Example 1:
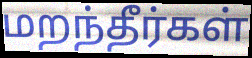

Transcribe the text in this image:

மறந்தீர்கள்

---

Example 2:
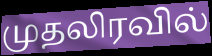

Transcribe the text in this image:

முதலிரவில்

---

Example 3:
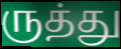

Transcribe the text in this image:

ருத்து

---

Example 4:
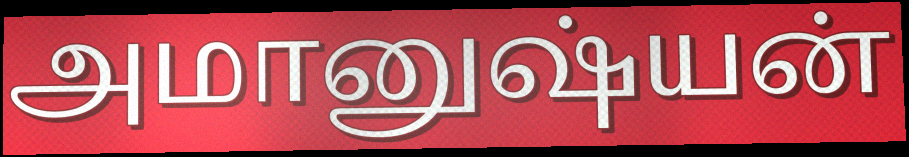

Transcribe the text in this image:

அமானுஷ்யன்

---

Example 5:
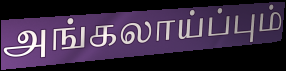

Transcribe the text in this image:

அங்கலாய்ப்பும்